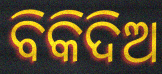
ବିକିଦିଅ